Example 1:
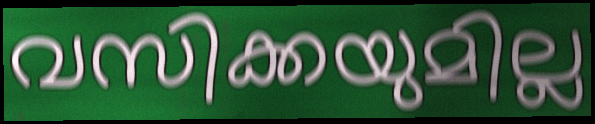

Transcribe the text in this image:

വസിക്കയുമില്ല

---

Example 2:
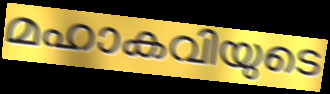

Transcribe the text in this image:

മഹാകവിയുടെ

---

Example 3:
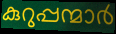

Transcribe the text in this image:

കുറുപ്പന്മാർ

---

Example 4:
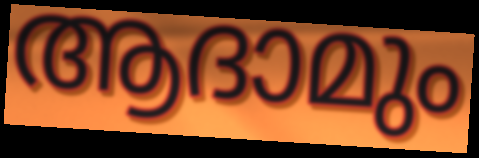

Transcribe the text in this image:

ആദാമും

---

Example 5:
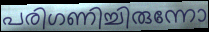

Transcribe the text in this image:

പരിഗണിച്ചിരുന്നോ